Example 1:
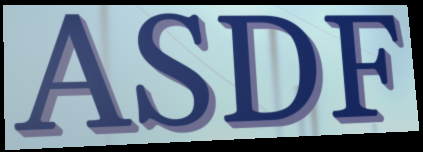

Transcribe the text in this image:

ASDF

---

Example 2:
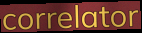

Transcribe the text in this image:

correlator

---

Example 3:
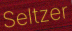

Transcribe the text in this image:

Seltzer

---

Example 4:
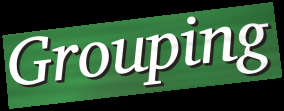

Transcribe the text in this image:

Grouping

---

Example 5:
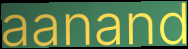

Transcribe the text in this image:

aanand